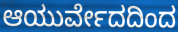
ಆಯುರ್ವೇದದಿಂದ